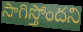
సాగిస్తోందని